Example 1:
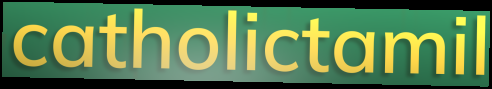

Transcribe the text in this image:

catholictamil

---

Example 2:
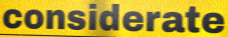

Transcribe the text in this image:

considerate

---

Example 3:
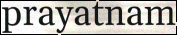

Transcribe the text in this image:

prayatnam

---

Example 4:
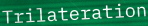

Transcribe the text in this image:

Trilateration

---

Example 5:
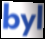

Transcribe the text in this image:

byl